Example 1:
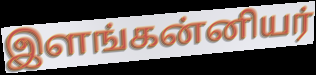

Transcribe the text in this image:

இளங்கன்னியர்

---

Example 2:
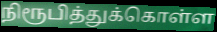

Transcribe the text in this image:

நிரூபித்துக்கொள்ள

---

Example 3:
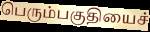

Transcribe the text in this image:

பெரும்பகுதியைச்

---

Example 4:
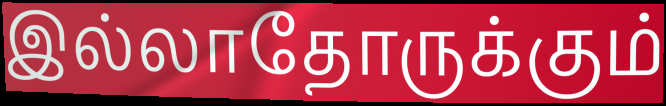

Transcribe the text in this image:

இல்லாதோருக்கும்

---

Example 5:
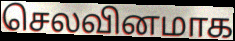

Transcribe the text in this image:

செலவினமாக